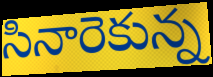
సినారెకున్న